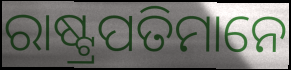
ରାଷ୍ଟ୍ରପତିମାନେ